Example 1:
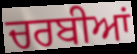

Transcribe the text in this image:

ਚਰਬੀਆਂ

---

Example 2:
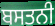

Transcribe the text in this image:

ਬਸਤਨੀ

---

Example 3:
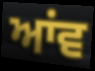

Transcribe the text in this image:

ਆਂਵ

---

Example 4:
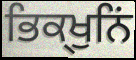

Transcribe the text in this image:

ਭਿਕ੍ਖੁਨਿਂ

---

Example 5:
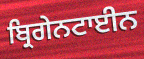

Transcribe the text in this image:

ਬ੍ਰਿਗੇਨਟਾਈਨ